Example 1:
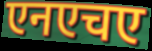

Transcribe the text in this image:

एनएचए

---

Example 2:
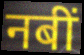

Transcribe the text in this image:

नबीं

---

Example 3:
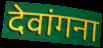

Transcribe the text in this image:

देवांगना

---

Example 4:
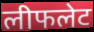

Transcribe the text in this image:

लीफलेट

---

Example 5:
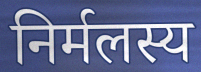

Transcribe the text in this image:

निर्मलस्य